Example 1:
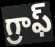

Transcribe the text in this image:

గ్రాఫ్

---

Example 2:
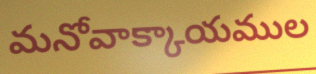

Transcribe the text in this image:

మనోవాక్కాయముల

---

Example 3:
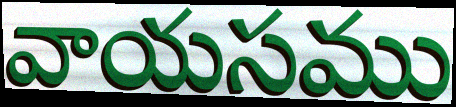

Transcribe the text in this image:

వాయసము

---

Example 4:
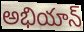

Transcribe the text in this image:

అభియాన్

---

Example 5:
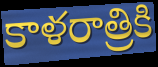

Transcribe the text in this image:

కాళరాత్రికి